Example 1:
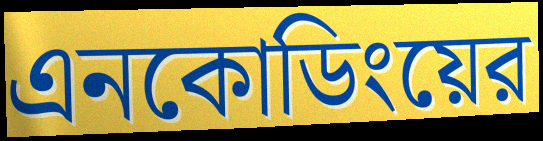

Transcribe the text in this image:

এনকোডিংয়ের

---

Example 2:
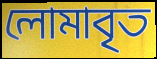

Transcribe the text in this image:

লোমাবৃত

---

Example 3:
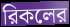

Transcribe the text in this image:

রিকলের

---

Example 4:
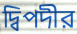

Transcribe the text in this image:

দ্বিপদীর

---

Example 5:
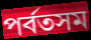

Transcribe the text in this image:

পর্বতসম